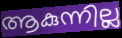
ആകുന്നില്ല